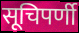
सूचिपर्णी